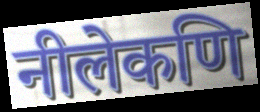
नीलेकणि